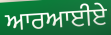
ਆਰਆਈਏ